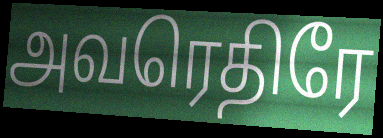
அவரெதிரே